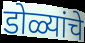
डोळ्यांचे